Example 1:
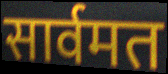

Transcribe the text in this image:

सार्वमत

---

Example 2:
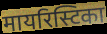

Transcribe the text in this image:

मायरिस्टिका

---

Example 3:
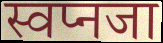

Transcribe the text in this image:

स्वप्नजा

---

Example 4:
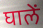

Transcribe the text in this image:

घालें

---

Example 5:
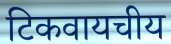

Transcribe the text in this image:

टिकवायचीय